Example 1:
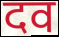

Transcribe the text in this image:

दव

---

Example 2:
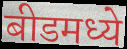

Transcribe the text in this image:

बीडमध्ये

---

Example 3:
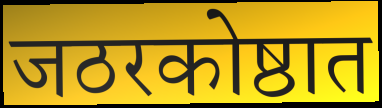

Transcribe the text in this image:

जठरकोष्ठात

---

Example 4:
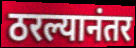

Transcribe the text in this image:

ठरल्यानंतर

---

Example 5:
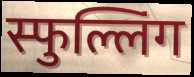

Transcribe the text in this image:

स्फुल्लिंग